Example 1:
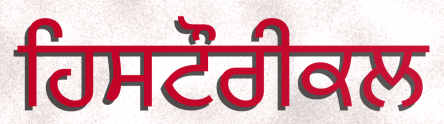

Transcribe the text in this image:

ਹਿਸਟੌਰੀਕਲ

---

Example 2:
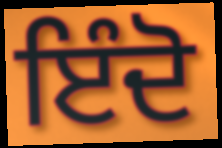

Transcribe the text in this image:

ਇੰਦੋ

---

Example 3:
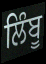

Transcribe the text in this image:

ਲਿੰਬੂ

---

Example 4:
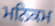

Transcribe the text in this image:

ਮਨਿਕਮ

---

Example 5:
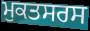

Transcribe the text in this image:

ਮੁਕਤਸਰਸ